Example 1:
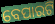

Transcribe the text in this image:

ବେପାରଟି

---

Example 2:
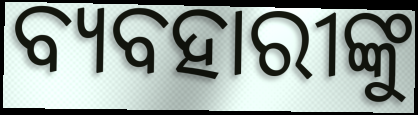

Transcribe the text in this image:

ବ୍ୟବହାରୀଙ୍କୁ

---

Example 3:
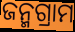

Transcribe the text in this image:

ଜନ୍ମଗ୍ରାମ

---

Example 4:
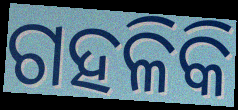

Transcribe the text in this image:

ଗହଳିକି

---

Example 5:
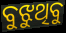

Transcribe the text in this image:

ବୁଝୁଥିବୁ